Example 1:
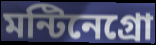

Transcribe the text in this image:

মন্টিনেগ্রো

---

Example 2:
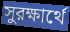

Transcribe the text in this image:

সুরক্ষার্থে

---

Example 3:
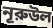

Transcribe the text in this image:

নূরুউল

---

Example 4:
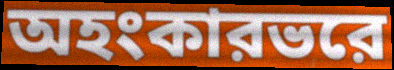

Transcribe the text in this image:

অহংকারভরে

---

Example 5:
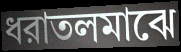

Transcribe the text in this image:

ধরাতলমাঝে